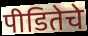
पीडितेचे